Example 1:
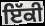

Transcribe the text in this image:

ਇੱਕੀ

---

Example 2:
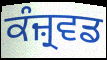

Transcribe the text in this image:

ਕੰਜ਼੍ਰਵਡ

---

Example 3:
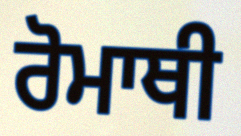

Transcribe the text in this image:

ਰੋਮਾਥੀ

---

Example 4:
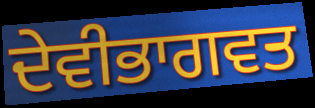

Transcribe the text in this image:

ਦੇਵੀਭਾਗਵਤ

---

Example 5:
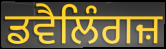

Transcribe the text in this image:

ਡਵੈਲਿੰਗਜ਼